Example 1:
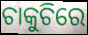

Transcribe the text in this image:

ଚାକୁଚିରେ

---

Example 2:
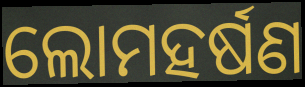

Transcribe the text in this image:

ଲୋମହର୍ଷଣ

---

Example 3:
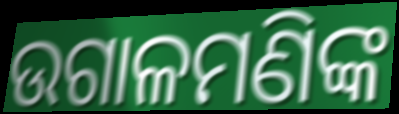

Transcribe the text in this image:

ଉଗାଳମଣିଙ୍କ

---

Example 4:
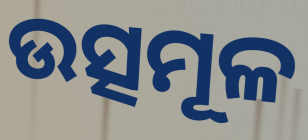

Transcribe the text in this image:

ଉତ୍ସମୂଳ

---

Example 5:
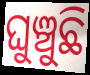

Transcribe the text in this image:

ଘୁଞ୍ଚୁଛି